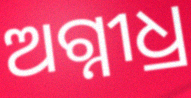
ଅଗ୍ନୀଧ୍ର